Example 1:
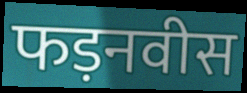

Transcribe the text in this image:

फड़नवीस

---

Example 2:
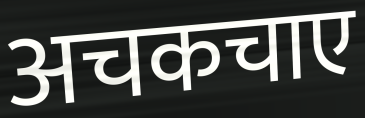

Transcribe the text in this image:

अचकचाए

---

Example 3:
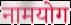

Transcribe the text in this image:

नामयोग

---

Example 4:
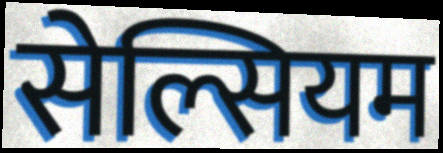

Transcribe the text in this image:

सेल्सियम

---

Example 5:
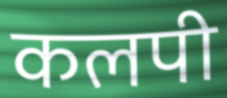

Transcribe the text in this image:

कलपी